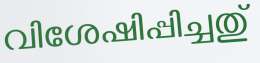
വിശേഷിപ്പിച്ചതു്